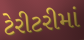
ટેરીટરીમાં